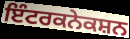
ਇੰਟਰਕਨੇਕਸ਼ਨ